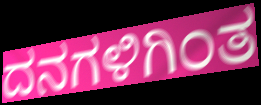
ದನಗಳಿಗಿಂತ